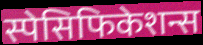
स्पेसिफिकेशन्स